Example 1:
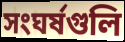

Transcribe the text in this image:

সংঘর্ষগুলি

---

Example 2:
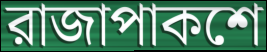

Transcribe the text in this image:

রাজাপাকশে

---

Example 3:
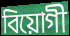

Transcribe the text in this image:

বিয়োগী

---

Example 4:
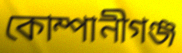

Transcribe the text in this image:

কোম্পানীগঞ্জ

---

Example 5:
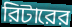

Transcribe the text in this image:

রিটারের